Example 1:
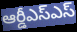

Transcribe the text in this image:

ఆర్డీఎస్ఎస్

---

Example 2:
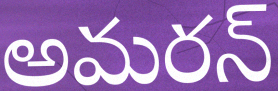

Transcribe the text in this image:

అమరన్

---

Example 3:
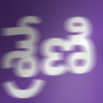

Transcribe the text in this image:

శ్రేణి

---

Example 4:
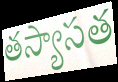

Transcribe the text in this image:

తస్యాసత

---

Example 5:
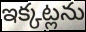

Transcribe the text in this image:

ఇక్కట్లను